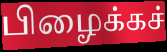
பிழைக்கச்